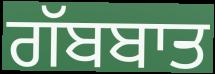
ਗੱਬਬਾਤ